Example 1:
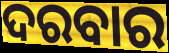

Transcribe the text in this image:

ଦରବାର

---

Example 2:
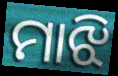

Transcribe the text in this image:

ମାଝି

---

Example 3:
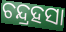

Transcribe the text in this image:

ଚନ୍ଦ୍ରହସା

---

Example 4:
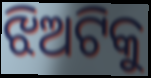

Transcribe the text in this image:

ଝିଅଟିକୁ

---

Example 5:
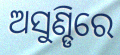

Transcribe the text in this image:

ଅସୁଣ୍ଡିରେ